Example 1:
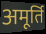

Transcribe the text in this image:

अमूर्ति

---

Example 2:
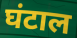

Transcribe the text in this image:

घंटाल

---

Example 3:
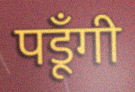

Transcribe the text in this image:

पडूँगी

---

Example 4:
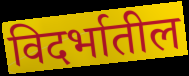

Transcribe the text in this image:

विदर्भातील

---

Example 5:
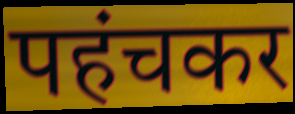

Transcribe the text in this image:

पहंचकर